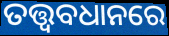
ତତ୍ତ୍ଵବଧାନରେ